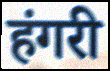
हंगरी